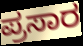
ಪ್ರಸಾರ